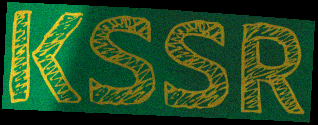
KSSR